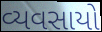
વ્યવસાયો